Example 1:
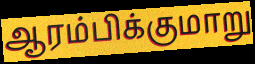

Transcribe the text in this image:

ஆரம்பிக்குமாறு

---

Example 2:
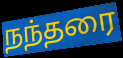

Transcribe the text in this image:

நந்தரை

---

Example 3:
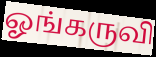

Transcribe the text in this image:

ஓங்கருவி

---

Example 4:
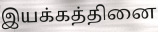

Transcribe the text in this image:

இயக்கத்தினை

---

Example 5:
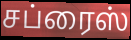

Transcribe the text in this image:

சப்ரைஸ்